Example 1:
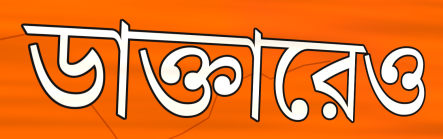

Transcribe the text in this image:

ডাক্তারেও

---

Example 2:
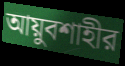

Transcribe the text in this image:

আয়ুবশাহীর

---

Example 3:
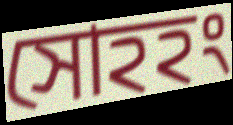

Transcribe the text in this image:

সোহহং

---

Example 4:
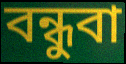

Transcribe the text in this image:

বন্ধুবা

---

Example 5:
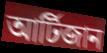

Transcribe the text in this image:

আর্টিজান